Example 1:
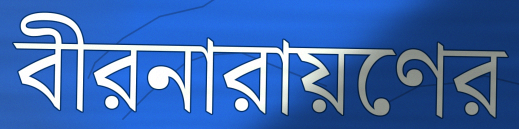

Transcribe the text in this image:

বীরনারায়ণের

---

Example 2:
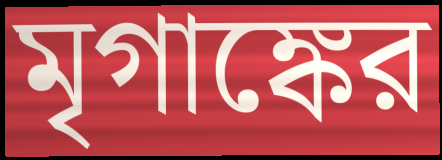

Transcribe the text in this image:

মৃগাঙ্কের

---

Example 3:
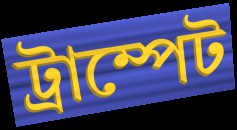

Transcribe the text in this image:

ট্রাম্পেট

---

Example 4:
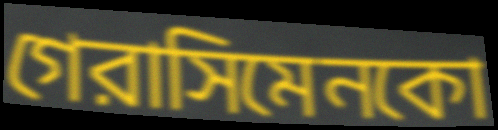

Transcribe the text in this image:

গেরাসিমেনকো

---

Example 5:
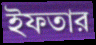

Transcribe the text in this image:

ইফতার